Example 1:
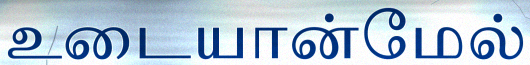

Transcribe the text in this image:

உடையான்மேல்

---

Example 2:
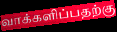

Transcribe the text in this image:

வாக்களிப்பதற்கு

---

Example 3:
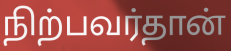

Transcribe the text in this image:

நிற்பவர்தான்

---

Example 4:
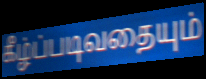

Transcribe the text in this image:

கீழ்ப்படிவதையும்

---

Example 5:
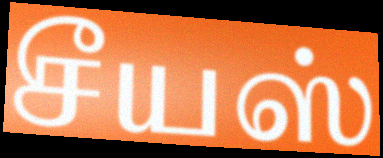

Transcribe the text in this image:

சீயஸ்